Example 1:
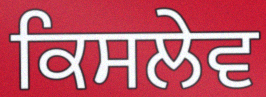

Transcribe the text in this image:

ਕਿਸਲੇਵ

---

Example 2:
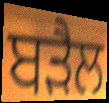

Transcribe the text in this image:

ਬੜੈਲ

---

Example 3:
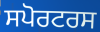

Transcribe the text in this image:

ਸਪੋਰਟਰਸ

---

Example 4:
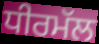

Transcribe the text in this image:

ਧੀਰਮੱਲ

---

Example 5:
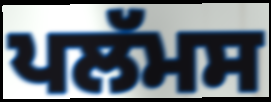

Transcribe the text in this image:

ਪਲੱਮਸ